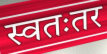
स्वतःतर